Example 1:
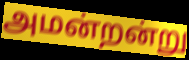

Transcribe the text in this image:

அமன்றன்று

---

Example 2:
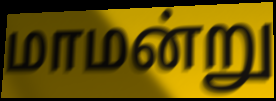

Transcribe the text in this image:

மாமன்று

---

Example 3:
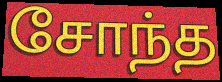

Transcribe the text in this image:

சோந்த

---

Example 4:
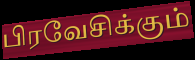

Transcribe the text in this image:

பிரவேசிக்கும்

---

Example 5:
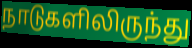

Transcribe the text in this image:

நாடுகளிலிருந்து